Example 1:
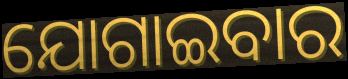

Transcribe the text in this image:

ଯୋଗାଇବାର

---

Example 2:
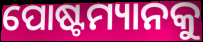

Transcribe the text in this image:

ପୋଷ୍ଟମ୍ୟାନକୁ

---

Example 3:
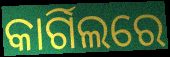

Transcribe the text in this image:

କାର୍ଗିଲରେ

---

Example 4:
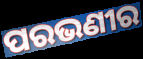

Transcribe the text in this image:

ପରଭଣୀର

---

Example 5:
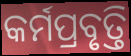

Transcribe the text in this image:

କର୍ମପ୍ରବୃତ୍ତି